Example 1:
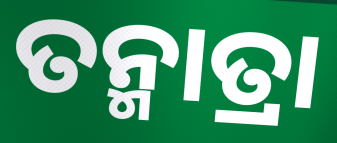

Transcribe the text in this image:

ତନ୍ମାତ୍ରା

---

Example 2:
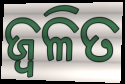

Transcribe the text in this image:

ଜ୍ୱଳିତ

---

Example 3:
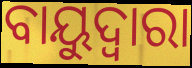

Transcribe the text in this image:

ବାୟୁଦ୍ୱାରା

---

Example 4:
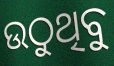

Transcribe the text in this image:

ଉଠୁଥିବୁ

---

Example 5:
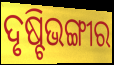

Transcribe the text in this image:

ଦୃଷ୍ଚିଭଙ୍ଗୀର